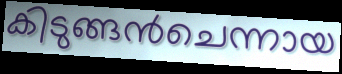
കിടുങ്ങൻചെന്നായ